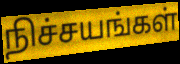
நிச்சயங்கள்